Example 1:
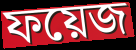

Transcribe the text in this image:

ফয়েজ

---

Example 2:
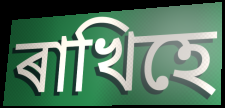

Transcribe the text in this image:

ৰাখিহে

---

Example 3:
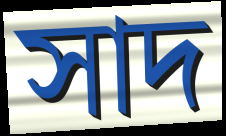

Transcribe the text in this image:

সাদ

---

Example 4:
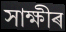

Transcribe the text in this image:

সাক্ষীৰ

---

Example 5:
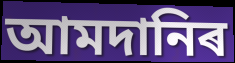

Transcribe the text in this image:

আমদানিৰ